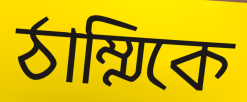
ঠাম্মিকে